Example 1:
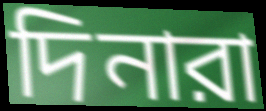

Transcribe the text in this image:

দিনারা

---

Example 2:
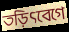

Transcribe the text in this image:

তড়িৎবেগে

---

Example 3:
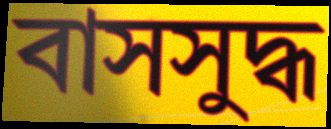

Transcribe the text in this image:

বাসসুদ্ধ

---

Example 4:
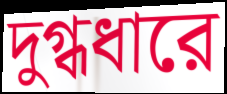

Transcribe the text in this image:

দুগ্ধধারে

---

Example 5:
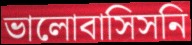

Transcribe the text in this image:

ভালোবাসিসনি